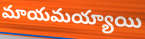
మాయమయ్యాయి